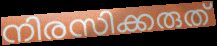
നിരസിക്കരുത്